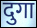
दुगा